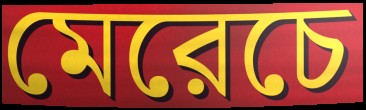
মেরেচে